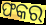
ଫକର